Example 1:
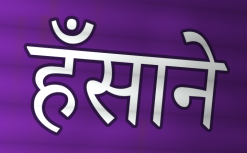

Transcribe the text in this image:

हँसाने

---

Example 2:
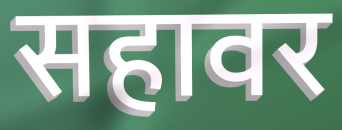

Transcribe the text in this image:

सहावर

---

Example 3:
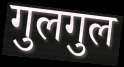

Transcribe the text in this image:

गुलगुल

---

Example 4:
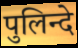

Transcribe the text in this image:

पुलिन्दे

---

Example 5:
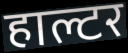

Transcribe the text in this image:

हाल्टर